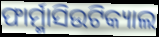
ଫାର୍ମ୍ମାସିଉଟିକ୍ୟାଲ